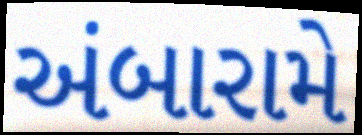
અંબારામે